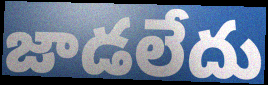
జాడలేదు